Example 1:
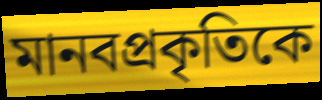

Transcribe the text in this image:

মানবপ্রকৃতিকে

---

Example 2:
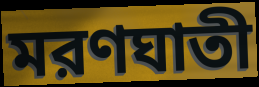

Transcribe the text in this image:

মরণঘাতী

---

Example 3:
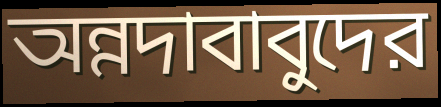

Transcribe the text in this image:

অন্নদাবাবুদের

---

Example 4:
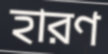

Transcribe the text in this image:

হারণ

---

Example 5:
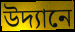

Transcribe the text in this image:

উদ্যানে